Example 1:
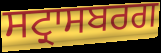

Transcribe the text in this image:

ਸਟ੍ਰਾਸਬਰਗ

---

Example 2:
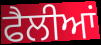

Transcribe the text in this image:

ਫੈਲੀਆਂ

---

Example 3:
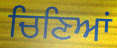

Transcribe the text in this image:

ਚਿਣਿਆਂ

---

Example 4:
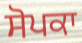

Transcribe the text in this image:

ਸੋਪਕਾ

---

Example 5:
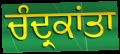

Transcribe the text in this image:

ਚੰਦ੍ਰਕਾਂਤਾ